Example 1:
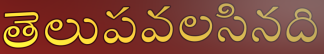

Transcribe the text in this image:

తెలుపవలసినది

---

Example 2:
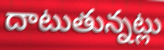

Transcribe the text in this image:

దాటుతున్నట్లు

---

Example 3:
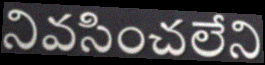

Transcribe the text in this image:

నివసించలేని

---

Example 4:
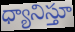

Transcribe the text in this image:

ధ్యానిస్తూ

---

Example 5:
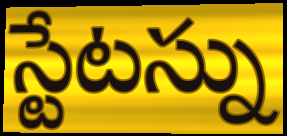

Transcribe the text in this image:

స్టేటస్ను